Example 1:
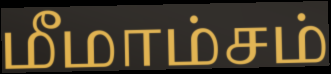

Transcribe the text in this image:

மீமாம்சம்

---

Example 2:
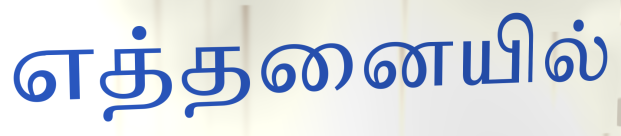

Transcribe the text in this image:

எத்தனையில்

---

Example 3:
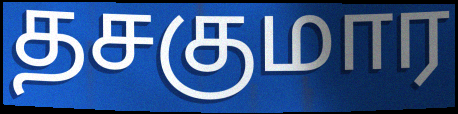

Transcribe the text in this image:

தசகுமார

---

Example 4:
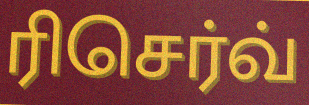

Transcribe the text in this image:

ரிசெர்வ்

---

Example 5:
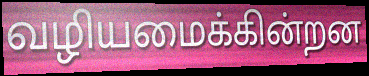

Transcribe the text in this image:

வழியமைக்கின்றன